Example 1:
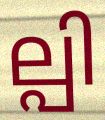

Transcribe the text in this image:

ല്പി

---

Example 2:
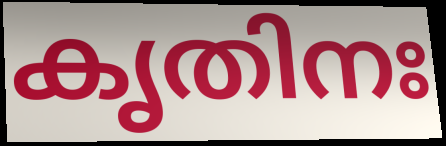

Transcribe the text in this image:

കൃതിനഃ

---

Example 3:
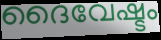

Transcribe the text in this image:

ദൈവേഷ്ടം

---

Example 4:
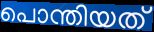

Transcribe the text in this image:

പൊന്തിയത്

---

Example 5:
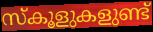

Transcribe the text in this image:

സ്കൂളുകളുണ്ട്